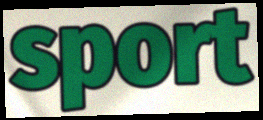
sport